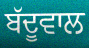
ਬੱਦੂਵਾਲ